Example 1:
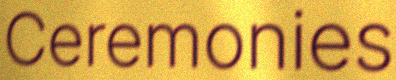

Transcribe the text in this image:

Ceremonies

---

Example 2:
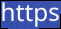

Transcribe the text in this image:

https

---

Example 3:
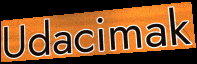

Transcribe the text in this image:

Udacimak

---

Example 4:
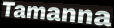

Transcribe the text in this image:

Tamanna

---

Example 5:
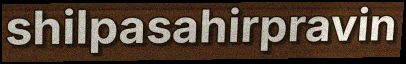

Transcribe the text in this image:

shilpasahirpravin